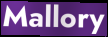
Mallory